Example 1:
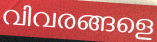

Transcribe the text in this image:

വിവരങ്ങളെ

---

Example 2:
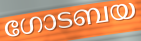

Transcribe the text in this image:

ഗോടബയ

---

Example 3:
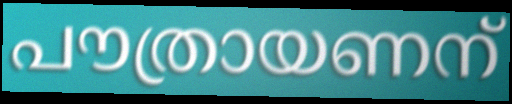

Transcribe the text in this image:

പൗത്രായണന്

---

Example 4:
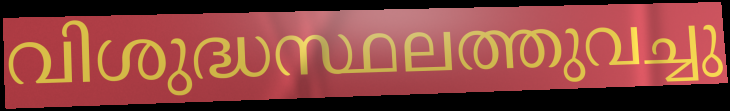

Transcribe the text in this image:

വിശുദ്ധസ്ഥലത്തുവച്ചു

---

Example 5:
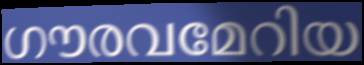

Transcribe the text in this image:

ഗൗരവമേറിയ